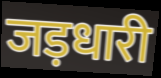
जड़धारी